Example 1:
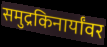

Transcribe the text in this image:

समुद्रकिनार्यांवर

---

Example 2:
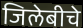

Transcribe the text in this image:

जिलेबीचे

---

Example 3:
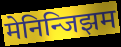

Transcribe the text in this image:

मेनिन्जिझम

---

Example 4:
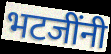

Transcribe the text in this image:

भटजींनी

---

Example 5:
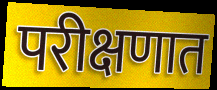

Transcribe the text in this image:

परीक्षणात